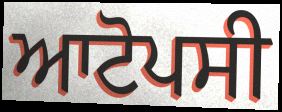
ਆਟੋਪਸੀ